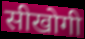
सीखोगी